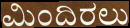
ಮಿಂದಿರಲು